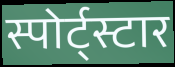
स्पोर्ट्स्टार